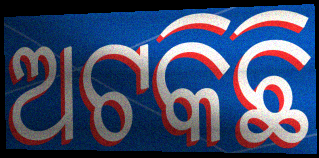
ଅଟକିଛି